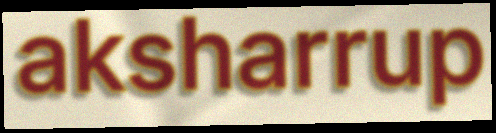
aksharrup